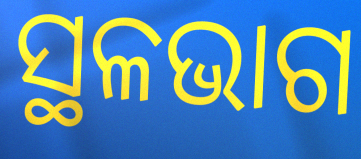
ସ୍ଥଳଭାଗ